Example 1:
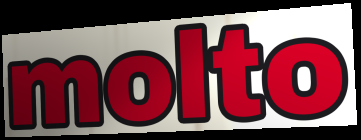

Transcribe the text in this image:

molto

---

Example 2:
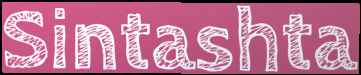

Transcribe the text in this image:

Sintashta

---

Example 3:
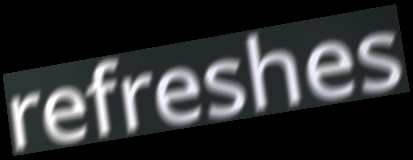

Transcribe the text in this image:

refreshes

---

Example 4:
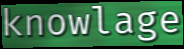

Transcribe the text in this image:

knowlage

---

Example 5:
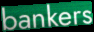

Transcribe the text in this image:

bankers